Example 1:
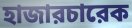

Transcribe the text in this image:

হাজারচারেক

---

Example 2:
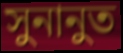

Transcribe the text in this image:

সুনানুত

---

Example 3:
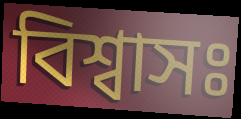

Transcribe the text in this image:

বিশ্বাসঃ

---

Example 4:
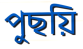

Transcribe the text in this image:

পুছয়ি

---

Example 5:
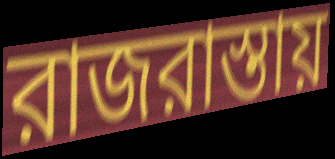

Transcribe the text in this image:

রাজরাস্তায়